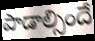
పాడాల్సిందే